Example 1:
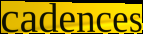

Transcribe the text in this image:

cadences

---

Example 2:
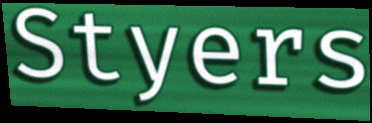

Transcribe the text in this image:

Styers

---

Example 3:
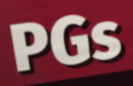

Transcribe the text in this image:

PGs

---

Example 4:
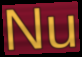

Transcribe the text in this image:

Nu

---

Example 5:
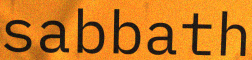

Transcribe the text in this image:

sabbath